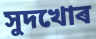
সুদখোৰ